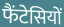
फैंटेसियों